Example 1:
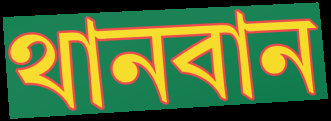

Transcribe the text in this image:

থানবান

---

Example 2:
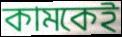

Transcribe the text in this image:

কামকেই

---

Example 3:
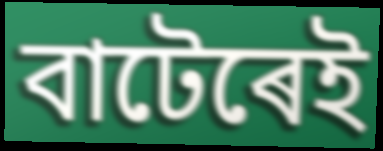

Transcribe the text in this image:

বাটেৰেই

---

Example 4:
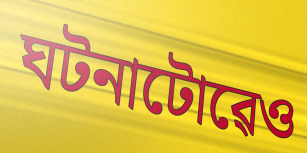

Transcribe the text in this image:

ঘটনাটোৱেও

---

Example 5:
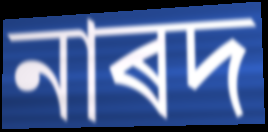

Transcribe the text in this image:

নাৰদ